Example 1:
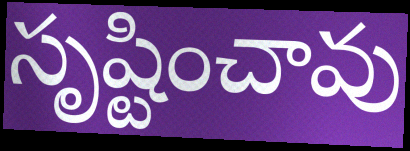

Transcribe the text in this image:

సృష్టించావు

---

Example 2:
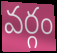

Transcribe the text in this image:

వర్గం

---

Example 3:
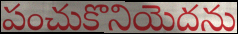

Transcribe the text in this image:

పంచుకొనియెదను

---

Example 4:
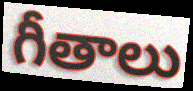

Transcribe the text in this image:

గీతాలు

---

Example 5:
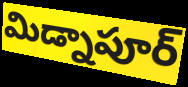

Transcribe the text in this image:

మిడ్నాపూర్